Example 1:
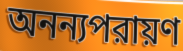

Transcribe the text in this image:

অনন্যপরায়ণ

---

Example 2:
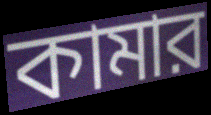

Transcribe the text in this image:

কামার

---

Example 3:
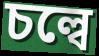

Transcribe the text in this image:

চল্বে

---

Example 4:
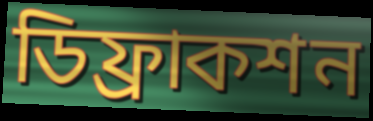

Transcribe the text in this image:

ডিফ্রাকশন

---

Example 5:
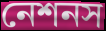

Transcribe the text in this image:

নেশনস